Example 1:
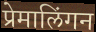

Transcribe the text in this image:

प्रेमालिंगन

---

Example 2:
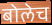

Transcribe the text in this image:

बोलेच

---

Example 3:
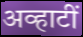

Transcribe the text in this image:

अव्हाटीं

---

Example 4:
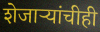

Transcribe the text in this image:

शेजाऱ्यांचीही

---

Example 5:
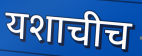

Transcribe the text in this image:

यशाचीच